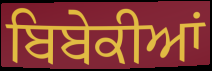
ਬਿਬੇਕੀਆਂ